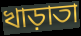
খাড়াতা